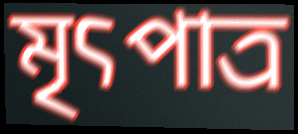
মৃৎপাত্র